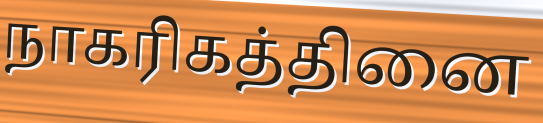
நாகரிகத்தினை